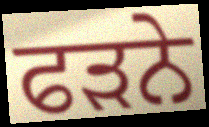
ਫੜਨੇ